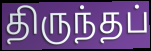
திருந்தப்